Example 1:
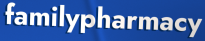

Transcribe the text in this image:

familypharmacy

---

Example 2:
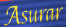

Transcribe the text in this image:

Asurar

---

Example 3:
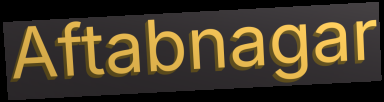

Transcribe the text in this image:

Aftabnagar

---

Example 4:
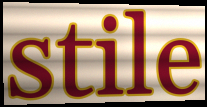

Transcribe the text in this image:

stile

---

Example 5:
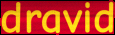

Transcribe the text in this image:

dravid